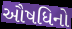
ઔષધિનો